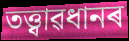
তত্ত্বাৱধানৰ